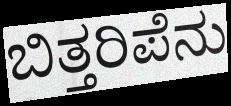
ಬಿತ್ತರಿಪೆನು